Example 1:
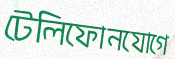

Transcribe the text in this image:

টেলিফোনযোগে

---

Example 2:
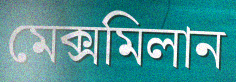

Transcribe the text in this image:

মেক্সমিলান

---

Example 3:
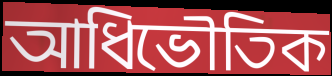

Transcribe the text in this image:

আধিভৌতিক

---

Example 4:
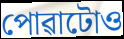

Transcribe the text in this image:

পোৱাটোও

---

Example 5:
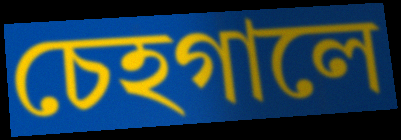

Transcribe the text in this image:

চেহগালে